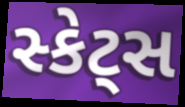
સ્કેટ્સ